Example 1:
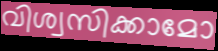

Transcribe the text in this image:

വിശ്വസിക്കാമോ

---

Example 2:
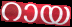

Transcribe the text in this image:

റായ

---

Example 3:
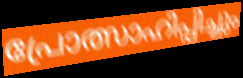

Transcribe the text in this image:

പ്രോത്സാഹിപ്പിച്ചും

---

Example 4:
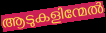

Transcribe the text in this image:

ആടുകളിന്മേൽ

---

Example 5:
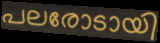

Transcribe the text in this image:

പലരോടായി